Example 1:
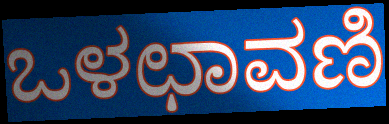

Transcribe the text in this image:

ಒಳಛಾವಣಿ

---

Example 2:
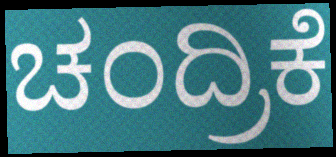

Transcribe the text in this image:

ಚಂದ್ರಿಕೆ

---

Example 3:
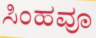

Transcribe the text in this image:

ಸಿಂಹವೂ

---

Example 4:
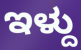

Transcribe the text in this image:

ಇಳ್ದು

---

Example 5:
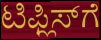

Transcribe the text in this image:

ಟಿಫ್ಲಿಸ್‍ಗೆ